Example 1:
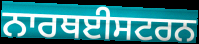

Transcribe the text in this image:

ਨਾਰਥਈਸਟਰਨ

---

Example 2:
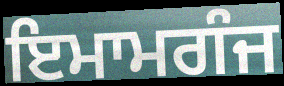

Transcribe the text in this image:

ਇਮਾਮਗੰਜ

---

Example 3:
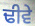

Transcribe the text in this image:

ਢੀਵੇ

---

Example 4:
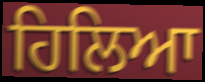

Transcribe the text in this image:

ਹਿਲਿਆ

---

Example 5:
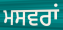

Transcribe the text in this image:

ਮਸਵਰਾਂ